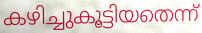
കഴിച്ചുകൂട്ടിയതെന്ന്